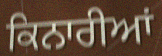
ਕਿਨਾਰੀਆਂ